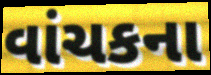
વાંચકના